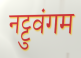
नट्टुवंगम